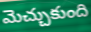
మెచ్చుకుంది